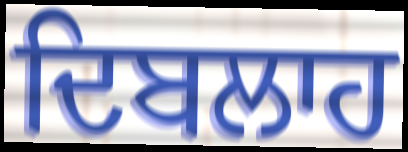
ਦਿਬਲਾਹ